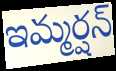
ఇమ్మర్షన్